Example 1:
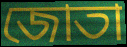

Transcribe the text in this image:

জোতা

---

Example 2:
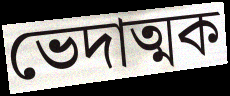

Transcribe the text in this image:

ভেদাত্মক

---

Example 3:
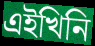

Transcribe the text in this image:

এইখিনি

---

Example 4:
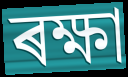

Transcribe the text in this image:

ৰক্ষা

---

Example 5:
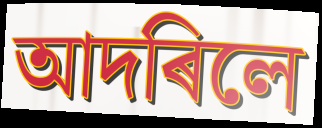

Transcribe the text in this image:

আদৰিলে